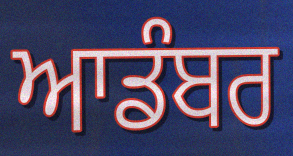
ਆਡੰਬਰ